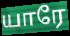
யாரே